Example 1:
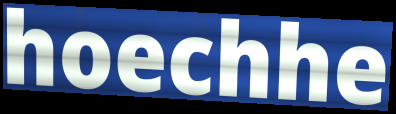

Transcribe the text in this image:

hoechhe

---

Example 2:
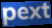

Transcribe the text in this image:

pext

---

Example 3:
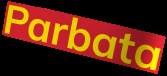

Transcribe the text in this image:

Parbata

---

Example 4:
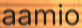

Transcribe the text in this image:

aamio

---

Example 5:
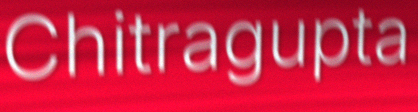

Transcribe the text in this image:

Chitragupta